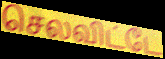
செலவிட்டே